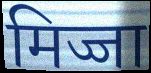
मिज्जा